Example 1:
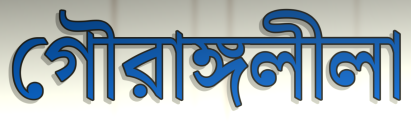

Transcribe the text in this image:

গৌরাঙ্গলীলা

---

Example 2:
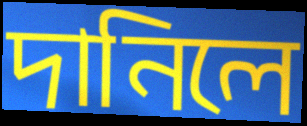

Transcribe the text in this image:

দানিলে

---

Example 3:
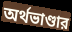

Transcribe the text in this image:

অর্থভাণ্ডার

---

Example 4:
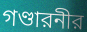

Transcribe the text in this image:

গণ্ডারনীর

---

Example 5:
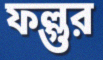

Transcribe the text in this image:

ফল্গুর